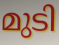
മുടി